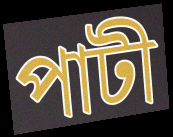
পাটী